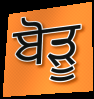
ਬੋੜੂ